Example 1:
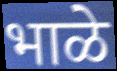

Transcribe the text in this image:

भाळे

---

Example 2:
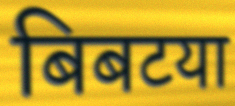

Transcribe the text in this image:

बिबटया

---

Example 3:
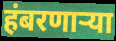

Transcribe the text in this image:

हंबरणाऱ्या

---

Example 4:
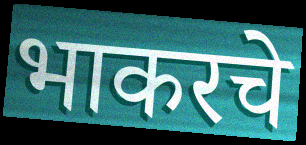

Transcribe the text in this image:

भाकरचे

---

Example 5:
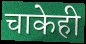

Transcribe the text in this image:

चाकेही